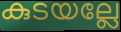
കുടയല്ലേ